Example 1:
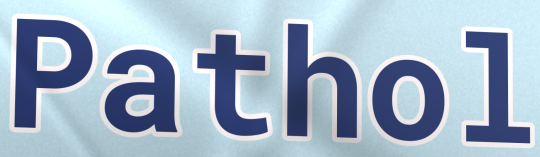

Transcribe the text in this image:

Pathol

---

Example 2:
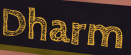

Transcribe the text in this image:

Dharm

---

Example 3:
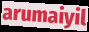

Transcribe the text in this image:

arumaiyil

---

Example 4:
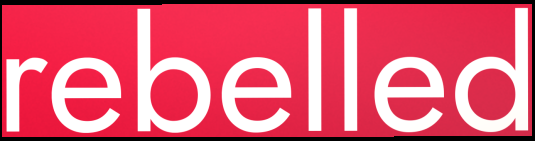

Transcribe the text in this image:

rebelled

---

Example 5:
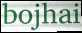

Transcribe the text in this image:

bojhai